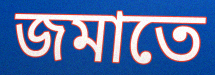
জমাতে